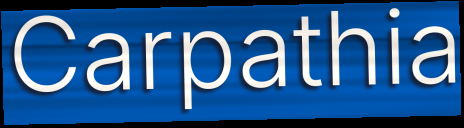
Carpathia